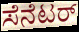
ಸೆನೆಟರ್